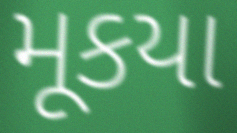
મૂકયા